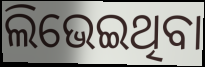
ଲିଭେଇଥିବା